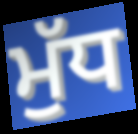
ਮੁੱਧ